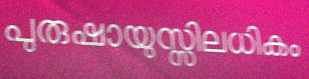
പുരുഷായുസ്സിലധികം